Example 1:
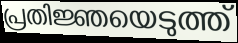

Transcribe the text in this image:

പ്രതിജ്ഞയെടുത്ത്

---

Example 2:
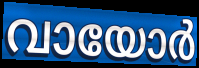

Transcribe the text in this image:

വായോർ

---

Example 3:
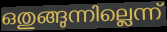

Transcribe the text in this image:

ഒതുങ്ങുന്നില്ലെന്ന്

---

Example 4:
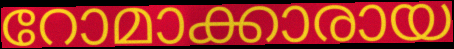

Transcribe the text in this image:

റോമാക്കാരായ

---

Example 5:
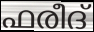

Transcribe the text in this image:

ഫരീദ്